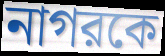
নাগরকে